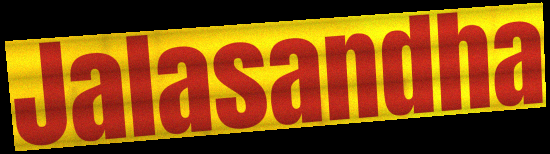
Jalasandha